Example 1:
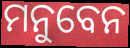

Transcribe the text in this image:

ମନୁବେନ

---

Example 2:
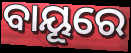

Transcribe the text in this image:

ବାୟୂରେ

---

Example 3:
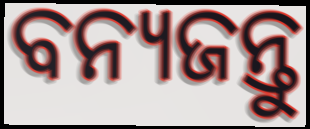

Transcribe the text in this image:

ବନ୍ୟଜନ୍ତୁ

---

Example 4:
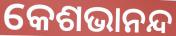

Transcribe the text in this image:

କେଶଭାନନ୍ଦ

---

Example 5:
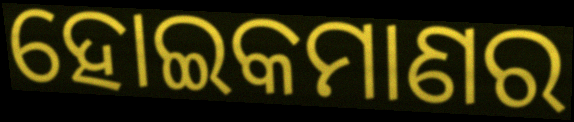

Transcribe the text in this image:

ହୋଇକମାଣର